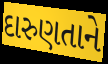
દારુણતાને